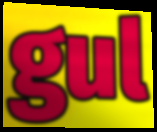
gul